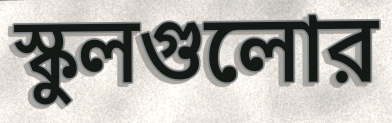
স্কুলগুলোর